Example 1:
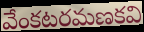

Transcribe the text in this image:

వేంకటరమణకవి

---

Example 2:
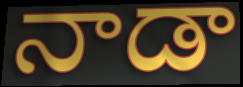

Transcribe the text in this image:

నాడా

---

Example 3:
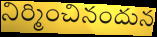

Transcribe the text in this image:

నిర్మించినందున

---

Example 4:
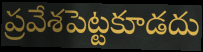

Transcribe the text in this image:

ప్రవేశపెట్టకూడదు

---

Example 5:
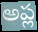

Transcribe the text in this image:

అప్ల